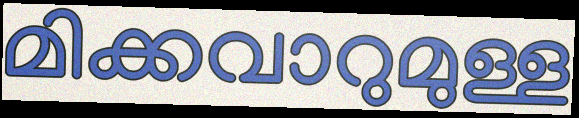
മിക്കവാറുമുള്ള